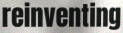
reinventing